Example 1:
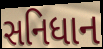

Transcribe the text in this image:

સનિધાન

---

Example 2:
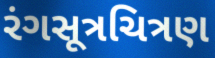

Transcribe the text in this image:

રંગસૂત્રચિત્રણ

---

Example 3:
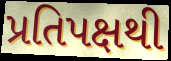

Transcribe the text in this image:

પ્રતિપક્ષથી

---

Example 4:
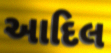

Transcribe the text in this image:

આદિલ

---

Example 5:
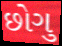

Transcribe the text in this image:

છોગુ